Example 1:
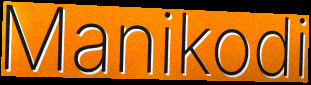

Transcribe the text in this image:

Manikodi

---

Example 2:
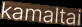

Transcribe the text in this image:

kamaltai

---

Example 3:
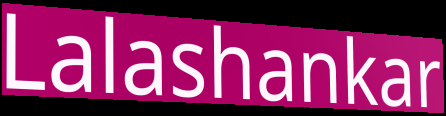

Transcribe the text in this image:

Lalashankar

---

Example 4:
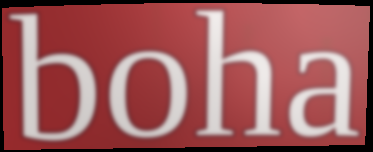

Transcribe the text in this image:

boha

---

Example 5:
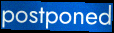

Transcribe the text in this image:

postponed